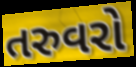
તરુવરો